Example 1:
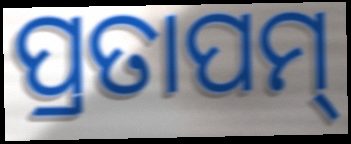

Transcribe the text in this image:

ପ୍ରତାପମ୍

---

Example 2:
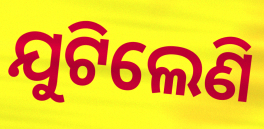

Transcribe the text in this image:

ଯୁଟିଲେଣି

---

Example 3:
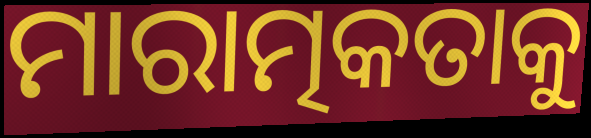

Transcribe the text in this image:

ମାରାତ୍ମକତାକୁ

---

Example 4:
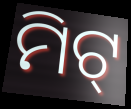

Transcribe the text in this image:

ମିଟ୍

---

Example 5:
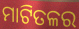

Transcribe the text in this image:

ମାଟିତଳର